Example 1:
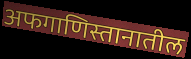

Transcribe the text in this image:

अफगाणिस्तानातील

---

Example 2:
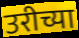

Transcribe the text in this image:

उरीच्या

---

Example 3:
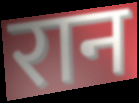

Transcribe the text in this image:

रान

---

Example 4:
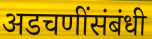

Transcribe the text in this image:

अडचणींसंबंधी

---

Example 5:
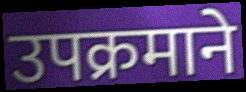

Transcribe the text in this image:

उपक्रमाने